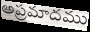
అప్రమాదము